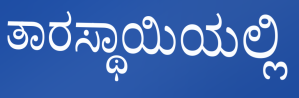
ತಾರಸ್ಥಾಯಿಯಲ್ಲಿ